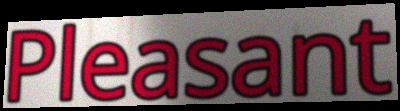
Pleasant